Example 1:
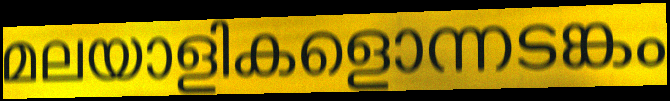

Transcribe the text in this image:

മലയാളികളൊന്നടങ്കം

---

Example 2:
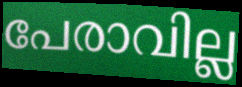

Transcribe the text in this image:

പേരാവില്ല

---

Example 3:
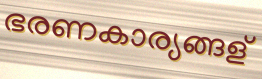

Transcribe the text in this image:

ഭരണകാര്യങ്ങള്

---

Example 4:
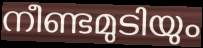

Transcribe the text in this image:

നീണ്ടമുടിയും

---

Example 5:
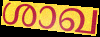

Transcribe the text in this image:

ശാഖ